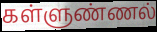
கள்ளுண்ணல்